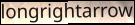
longrightarrow